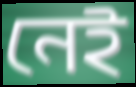
নেই